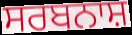
ਸਰਬਨਾਸ਼